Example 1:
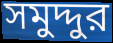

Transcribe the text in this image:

সমুদ্দুর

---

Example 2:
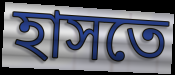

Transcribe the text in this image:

হাসতে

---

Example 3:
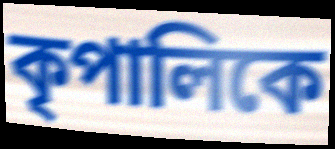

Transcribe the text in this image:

কৃপালিকে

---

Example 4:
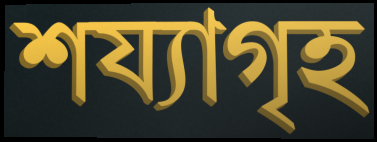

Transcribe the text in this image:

শয্যাগৃহ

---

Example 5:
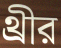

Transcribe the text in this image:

থ্রীর